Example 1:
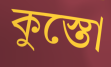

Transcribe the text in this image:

কুস্তো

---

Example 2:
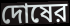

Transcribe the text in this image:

দোষের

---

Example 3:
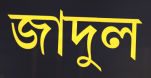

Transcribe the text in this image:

জাদুল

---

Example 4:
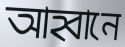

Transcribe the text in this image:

আহ্বানে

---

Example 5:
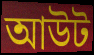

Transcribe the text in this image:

আউট